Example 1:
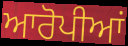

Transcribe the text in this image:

ਆਰੋਪੀਆਂ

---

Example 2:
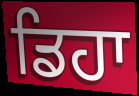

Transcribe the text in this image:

ਡਿਹਾ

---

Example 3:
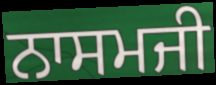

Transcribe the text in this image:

ਨਾਸਮਜੀ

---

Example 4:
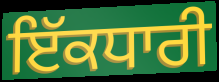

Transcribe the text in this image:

ਇੱਕਧਾਰੀ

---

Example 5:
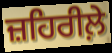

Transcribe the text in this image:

ਜ਼ਹਿਰੀਲ਼ੇ